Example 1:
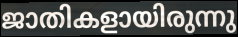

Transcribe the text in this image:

ജാതികളായിരുന്നു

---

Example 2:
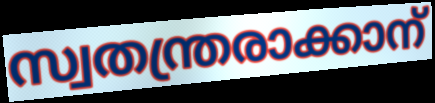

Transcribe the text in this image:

സ്വതന്ത്രരാക്കാന്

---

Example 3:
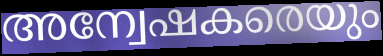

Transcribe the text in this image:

അന്വേഷകരെയും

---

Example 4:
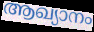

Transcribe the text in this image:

ആഖ്യാനം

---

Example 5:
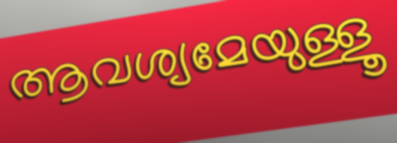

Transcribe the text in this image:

ആവശ്യമേയുള്ളൂ